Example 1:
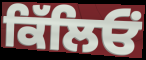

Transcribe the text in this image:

ਕਿੱਲਿਓਂ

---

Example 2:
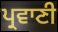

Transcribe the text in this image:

ਪ੍ਰਵਾਣੀ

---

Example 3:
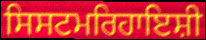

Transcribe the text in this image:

ਸਿਸਟਮਰਿਹਾਇਸ਼ੀ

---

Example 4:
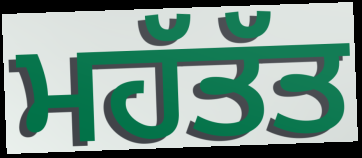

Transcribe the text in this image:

ਮਹੱਤੱਤ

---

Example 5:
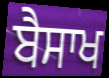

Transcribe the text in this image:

ਬੈਸਾਖ